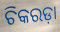
ଚିକରଡ଼ା